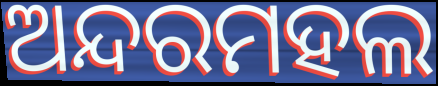
ଅନ୍ଦରମହଲ